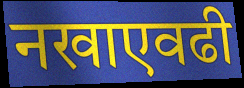
नखाएवढी